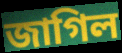
জাগিল